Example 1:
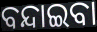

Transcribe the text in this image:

ବନ୍ଦାଇବା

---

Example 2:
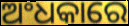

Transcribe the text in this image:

ଅଂଧକାରେ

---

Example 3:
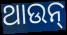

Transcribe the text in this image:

ଥାଉନ୍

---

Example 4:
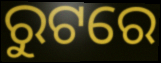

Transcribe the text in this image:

ରୁଟରେ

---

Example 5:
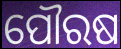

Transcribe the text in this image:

ପୌରଷ